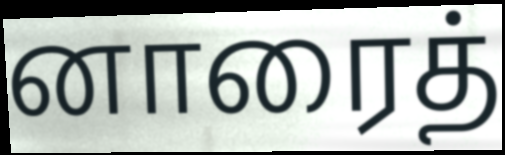
னாரைத்